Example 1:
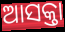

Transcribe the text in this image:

ଆସକ୍ତା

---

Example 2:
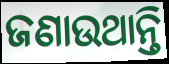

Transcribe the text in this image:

ଜଣାଉଥାନ୍ତି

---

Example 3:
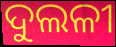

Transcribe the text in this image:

ଦୁଲଳୀ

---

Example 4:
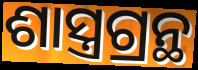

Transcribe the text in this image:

ଶାସ୍ତ୍ରଗ୍ରନ୍ଥ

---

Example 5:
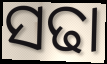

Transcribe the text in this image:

ସଢା